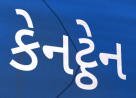
કેનટ્ઠેન